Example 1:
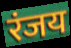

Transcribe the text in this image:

रंजय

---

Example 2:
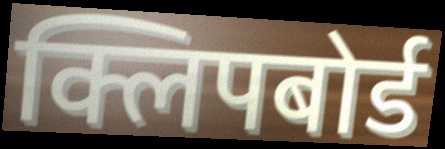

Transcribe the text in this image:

क्लिपबोर्ड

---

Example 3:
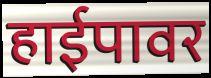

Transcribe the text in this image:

हाईपावर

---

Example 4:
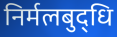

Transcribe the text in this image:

निर्मलबुद्धि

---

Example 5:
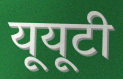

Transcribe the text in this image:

यूयूटी